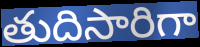
తుదిసారిగా